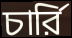
চার্রি